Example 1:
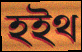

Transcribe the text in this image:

হইথ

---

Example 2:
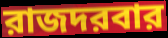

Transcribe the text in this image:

রাজদরবার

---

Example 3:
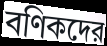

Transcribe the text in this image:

বণিকদের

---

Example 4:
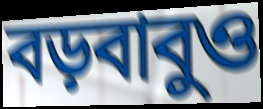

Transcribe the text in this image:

বড়বাবুও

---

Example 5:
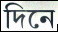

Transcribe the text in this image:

দিনে